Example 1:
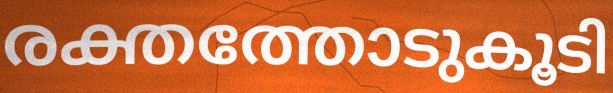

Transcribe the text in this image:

രക്തത്തോടുകൂടി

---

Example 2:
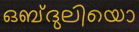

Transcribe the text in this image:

ഒബ്ദുലിയൊ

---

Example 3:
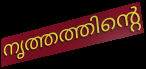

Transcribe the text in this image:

നൃത്തത്തിന്റെ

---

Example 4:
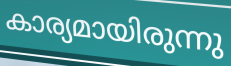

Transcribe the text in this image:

കാര്യമായിരുന്നു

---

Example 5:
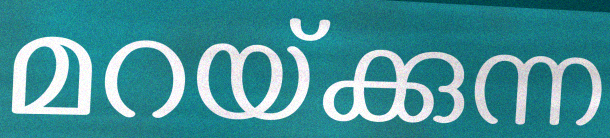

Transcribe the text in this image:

മറയ്‌ക്കുന്ന